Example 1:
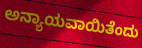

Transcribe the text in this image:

ಅನ್ಯಾಯವಾಯಿತೆಂದು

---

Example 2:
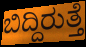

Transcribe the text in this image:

ಬಿದ್ದಿರುತ್ತೆ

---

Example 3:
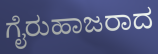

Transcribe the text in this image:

ಗೈರುಹಾಜರಾದ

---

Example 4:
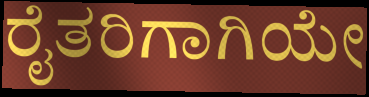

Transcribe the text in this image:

ರೈತರಿಗಾಗಿಯೇ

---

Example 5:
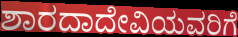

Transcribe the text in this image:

ಶಾರದಾದೇವಿಯವರಿಗೆ